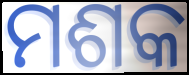
ମଶକ